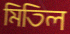
মিতিল